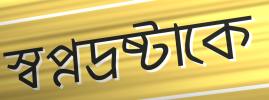
স্বপ্নদ্রষ্টাকে